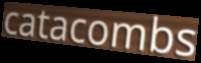
catacombs